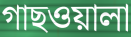
গাছওয়ালা